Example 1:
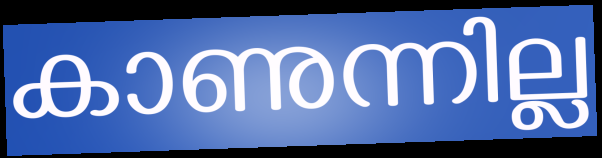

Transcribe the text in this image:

കാണുന്നില്ല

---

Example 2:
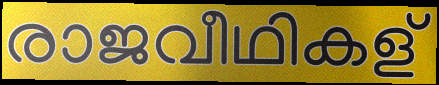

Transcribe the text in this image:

രാജവീഥികള്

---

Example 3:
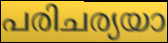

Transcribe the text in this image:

പരിചര്യയാ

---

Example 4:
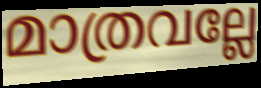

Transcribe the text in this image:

മാത്രവല്ലേ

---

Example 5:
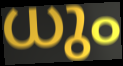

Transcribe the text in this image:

ധും